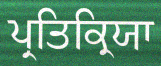
ਪ੍ਰਤਿਕ੍ਰਿਯਾ